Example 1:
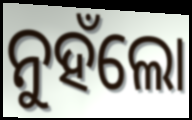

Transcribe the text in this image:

ନୁହଁଲୋ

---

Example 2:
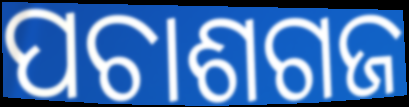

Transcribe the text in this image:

ପଚାଶଗଜ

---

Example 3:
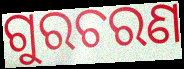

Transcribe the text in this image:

ଗୁରଚରଣ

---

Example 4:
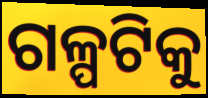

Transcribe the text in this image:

ଗଳ୍ପଟିକୁ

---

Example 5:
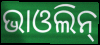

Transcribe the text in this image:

ଭାଓଲିନ୍